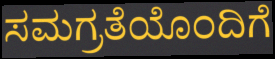
ಸಮಗ್ರತೆಯೊಂದಿಗೆ